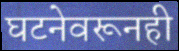
घटनेवरूनही